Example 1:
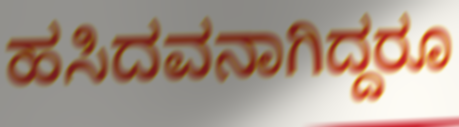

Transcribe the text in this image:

ಹಸಿದವನಾಗಿದ್ದರೂ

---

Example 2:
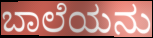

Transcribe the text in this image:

ಬಾಲೆಯನು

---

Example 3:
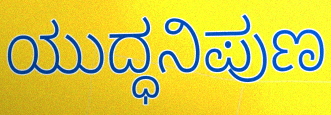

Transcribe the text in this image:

ಯುದ್ಧನಿಪುಣ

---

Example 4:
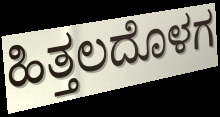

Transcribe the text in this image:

ಹಿತ್ತಲದೊಳಗ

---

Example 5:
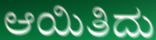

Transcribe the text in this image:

ಆಯಿತಿದು